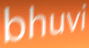
bhuvi